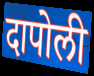
दापोली